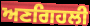
ਅਣਗਿਹਲੀ